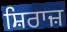
ਸ਼ਿਰਾਜ਼